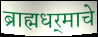
ब्राह्मधर्माचे